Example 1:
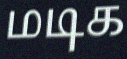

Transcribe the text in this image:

மடிக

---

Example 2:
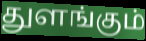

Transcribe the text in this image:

துளங்கும்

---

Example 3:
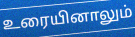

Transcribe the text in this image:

உரையினாலும்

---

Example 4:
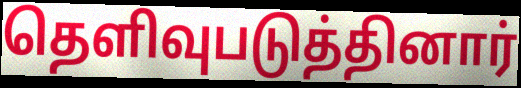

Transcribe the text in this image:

தெளிவுபடுத்தினார்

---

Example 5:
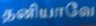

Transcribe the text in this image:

தனியாவே